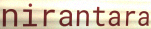
nirantara